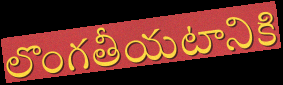
లొంగతీయటానికి